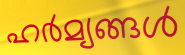
ഹർമ്യങ്ങൾ